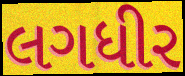
લગધીર